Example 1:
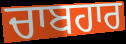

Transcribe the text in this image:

ਚਾਬਹਾਰ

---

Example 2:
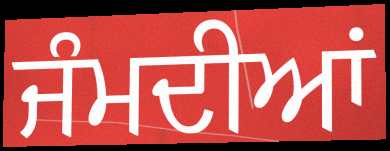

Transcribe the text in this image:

ਜੰਮਦੀਆਂ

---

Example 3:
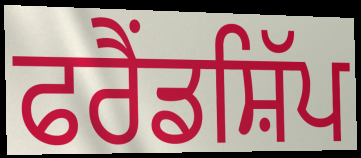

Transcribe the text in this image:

ਫਰੈਂਡਸ਼ਿੱਪ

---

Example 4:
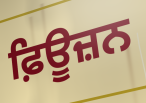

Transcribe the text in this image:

ਫ਼ਿਊਜ਼ਨ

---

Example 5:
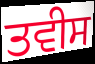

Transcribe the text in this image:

ਤਵੀਸ